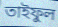
তাইফুল